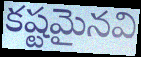
కష్టమైనవి